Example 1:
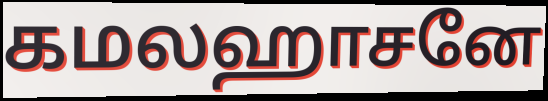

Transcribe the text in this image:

கமலஹாசனே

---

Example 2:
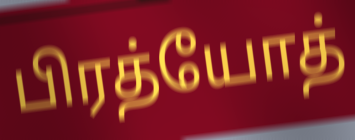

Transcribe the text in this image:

பிரத்யோத்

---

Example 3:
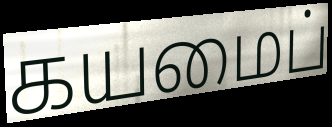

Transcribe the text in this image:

கயமைப்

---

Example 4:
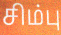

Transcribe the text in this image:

சிம்பு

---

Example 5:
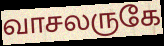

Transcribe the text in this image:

வாசலருகே